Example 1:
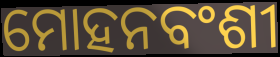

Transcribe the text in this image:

ମୋହନବଂଶୀ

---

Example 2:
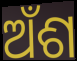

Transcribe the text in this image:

ଅଁଶ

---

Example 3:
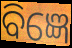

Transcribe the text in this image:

ବିଜ୍ଞେ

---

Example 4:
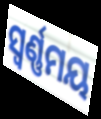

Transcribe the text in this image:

ସ୍ୱର୍ଣ୍ଣମୟ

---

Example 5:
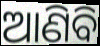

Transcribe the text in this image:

ଆଣିବି